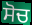
ਸੋਚ